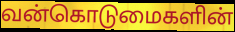
வன்கொடுமைகளின்